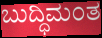
ಬುದ್ಧಿಮಂತ